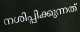
നശിപ്പിക്കുന്നത്